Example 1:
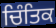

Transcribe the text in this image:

ਚਿੰਤਿਕ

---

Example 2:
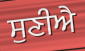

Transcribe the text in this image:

ਸੁਣੀਐ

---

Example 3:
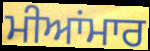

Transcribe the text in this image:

ਮੀਆਂਮਾਰ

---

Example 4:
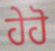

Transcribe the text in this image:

ਹੇਹੋ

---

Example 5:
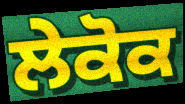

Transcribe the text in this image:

ਲੇਕੋਕ